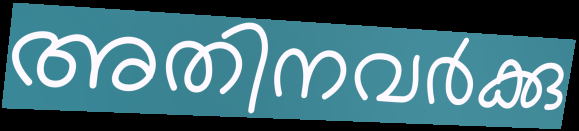
അതിനവർക്കു